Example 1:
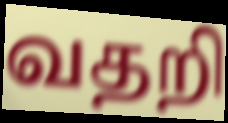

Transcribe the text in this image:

வதறி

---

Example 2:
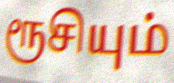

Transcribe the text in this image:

ரூசியும்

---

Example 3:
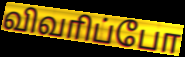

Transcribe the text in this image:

விவரிப்போ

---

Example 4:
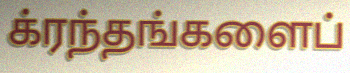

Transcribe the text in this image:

க்ரந்தங்களைப்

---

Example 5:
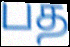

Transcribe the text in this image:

பத